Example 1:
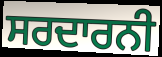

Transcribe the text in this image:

ਸਰਦਾਰਨੀ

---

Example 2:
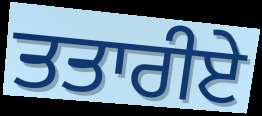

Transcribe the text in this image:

ਤਤਾਰੀਏ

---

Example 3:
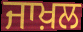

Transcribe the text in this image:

ਜਾਖ਼ਲ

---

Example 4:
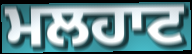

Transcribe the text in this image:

ਮਲਹਾਟ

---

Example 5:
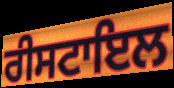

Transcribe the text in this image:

ਰੀਸਟਾਇਲ